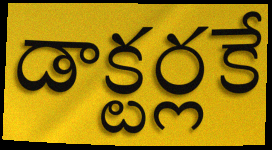
డాక్టర్లకే